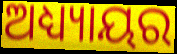
ଅଧ୍ୟ୍ୟାୟର